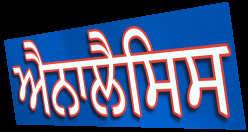
ਐਨਾਲੈਸਿਸ